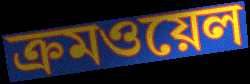
ক্রমওয়েল